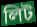
লিট